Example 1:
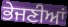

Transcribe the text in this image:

ਭੇਜਣੀਆਂ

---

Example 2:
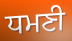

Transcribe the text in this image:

ਧਮਣੀ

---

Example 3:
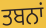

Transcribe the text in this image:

ਤਬਨਾਂ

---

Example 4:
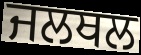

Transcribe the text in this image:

ਜਲਥਲ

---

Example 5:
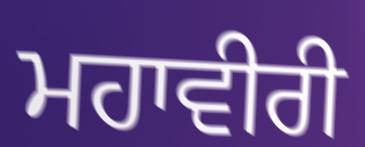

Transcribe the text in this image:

ਮਹਾਵੀਰੀ